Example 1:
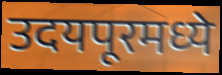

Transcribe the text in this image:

उदयपूरमध्ये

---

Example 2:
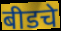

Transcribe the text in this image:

बीडचे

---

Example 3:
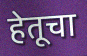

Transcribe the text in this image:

हेतूचा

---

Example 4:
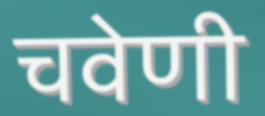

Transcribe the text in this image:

चवेणी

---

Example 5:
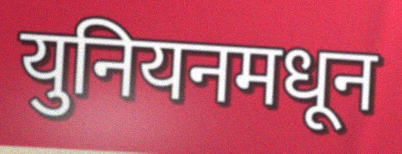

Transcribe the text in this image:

युनियनमधून